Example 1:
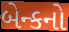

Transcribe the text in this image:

બેન્કનો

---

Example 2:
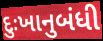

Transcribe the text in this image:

દુઃખાનુબંધી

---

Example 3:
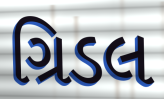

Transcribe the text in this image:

ગ્રિડલ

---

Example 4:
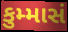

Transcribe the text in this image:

કુમ્માસં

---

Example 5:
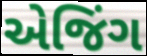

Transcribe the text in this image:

એજિંગ